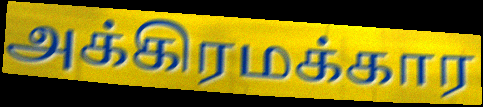
அக்கிரமக்கார